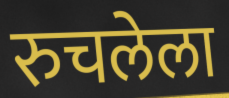
रुचलेला